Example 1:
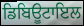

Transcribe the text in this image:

ਡਿਬਿਊਟਾਇਲ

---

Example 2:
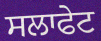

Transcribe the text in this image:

ਸਲਾਫੇਟ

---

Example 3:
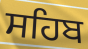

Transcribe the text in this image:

ਸਹਿਬ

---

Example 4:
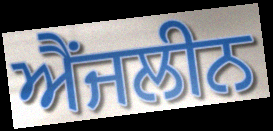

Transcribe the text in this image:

ਐਂਜਲੀਨ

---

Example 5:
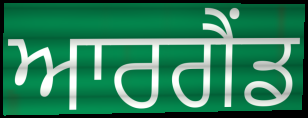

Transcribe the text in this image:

ਆਰਗੈਂਡ